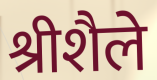
श्रीशैले